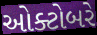
ઓક્ટોબરે